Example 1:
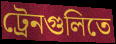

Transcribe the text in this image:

ট্রেনগুলিতে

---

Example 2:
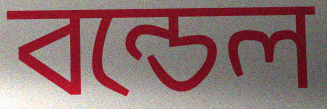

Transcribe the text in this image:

বন্ডেল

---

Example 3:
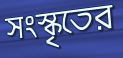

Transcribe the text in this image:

সংস্কৃতের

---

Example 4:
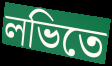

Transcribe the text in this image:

লভিতে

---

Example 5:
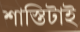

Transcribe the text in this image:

শাস্তিটাই